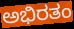
ಅಭಿರತಂ